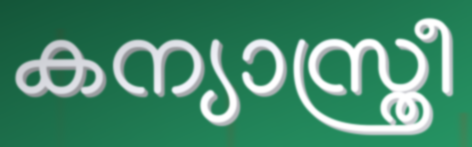
കന്യാസ്ത്രീ